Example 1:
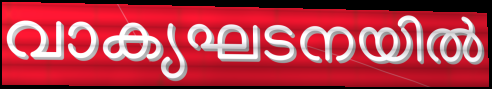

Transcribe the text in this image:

വാക്യഘടനയിൽ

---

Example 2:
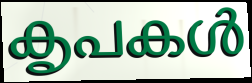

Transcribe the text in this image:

കൃപകൾ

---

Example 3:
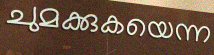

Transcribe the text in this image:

ചുമക്കുകയെന്ന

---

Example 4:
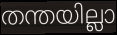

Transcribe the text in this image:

തന്തയില്ലാ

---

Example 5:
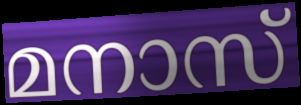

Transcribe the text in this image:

മനാസ്